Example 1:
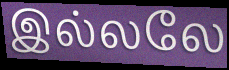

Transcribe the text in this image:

இல்லலே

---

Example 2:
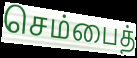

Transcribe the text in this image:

செம்பைத்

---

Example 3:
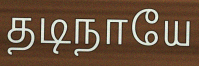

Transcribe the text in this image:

தடிநாயே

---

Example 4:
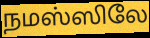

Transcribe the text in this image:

நமஸ்ஸிலே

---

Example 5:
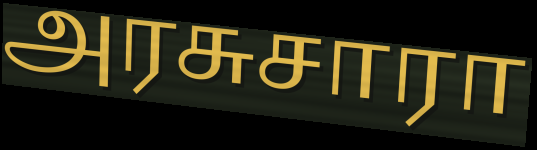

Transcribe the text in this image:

அரசுசாரா